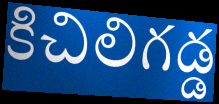
కిచిలిగడ్డ